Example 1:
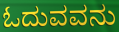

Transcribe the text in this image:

ಓದುವವನು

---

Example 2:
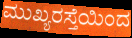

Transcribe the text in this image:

ಮುಖ್ಯರಸ್ತೆಯಿಂದ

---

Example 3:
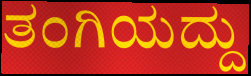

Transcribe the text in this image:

ತಂಗಿಯದ್ದು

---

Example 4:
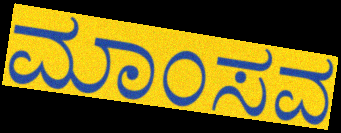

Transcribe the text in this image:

ಮಾಂಸವ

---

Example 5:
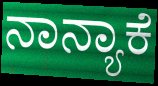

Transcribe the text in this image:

ನಾನ್ಯಾಕೆ